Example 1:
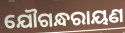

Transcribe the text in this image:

ଯୌଗନ୍ଧରାୟଣ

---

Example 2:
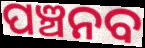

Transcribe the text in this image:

ପଞ୍ଚନବ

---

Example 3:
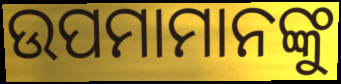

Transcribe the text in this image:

ଉପମାମାନଙ୍କୁ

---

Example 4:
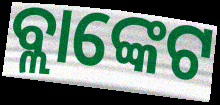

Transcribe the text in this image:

ବ୍ଲାଙ୍କେଟ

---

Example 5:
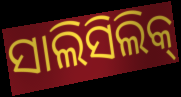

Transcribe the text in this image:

ସାଲିସିଲିକ୍